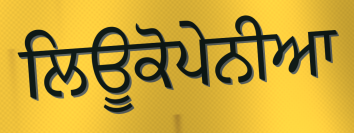
ਲਿਊਕੋਪੇਨੀਆ